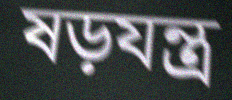
ষড়যন্ত্র